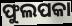
ଫୁଲପକା